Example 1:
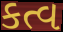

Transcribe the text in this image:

કત્વ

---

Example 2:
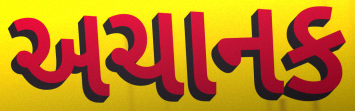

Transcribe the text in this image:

અચાનક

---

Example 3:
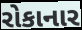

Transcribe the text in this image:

રોકાનાર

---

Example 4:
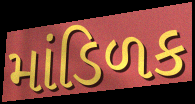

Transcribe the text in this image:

માંડિળક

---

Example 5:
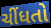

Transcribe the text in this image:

ચીંધતો